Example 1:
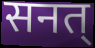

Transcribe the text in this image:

सनत्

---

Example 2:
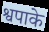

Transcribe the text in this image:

श्वपाके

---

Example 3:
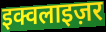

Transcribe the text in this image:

इक्वलाइज़र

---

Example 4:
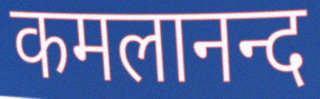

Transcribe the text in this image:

कमलानन्द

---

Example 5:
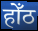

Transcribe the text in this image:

होँठ